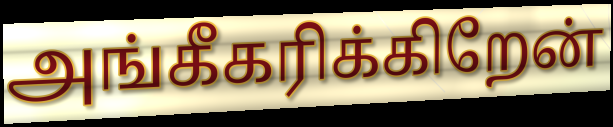
அங்கீகரிக்கிறேன்